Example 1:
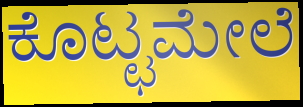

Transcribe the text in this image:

ಕೊಟ್ಟಮೇಲೆ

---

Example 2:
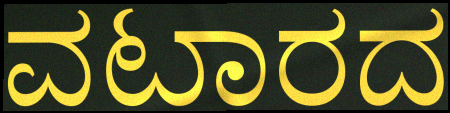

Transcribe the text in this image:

ವಟಾರದ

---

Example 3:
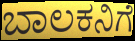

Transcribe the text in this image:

ಬಾಲಕನಿಗೆ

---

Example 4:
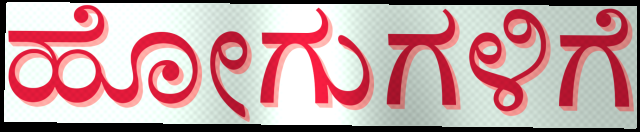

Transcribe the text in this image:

ಹೋಗುಗಳಿಗೆ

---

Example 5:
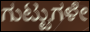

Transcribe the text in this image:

ಗುಟ್ಟುಗಳೇ